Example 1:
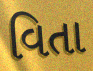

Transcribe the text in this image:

વિતા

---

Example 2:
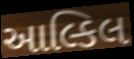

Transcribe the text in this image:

આલ્કિલ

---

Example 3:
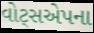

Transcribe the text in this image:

વોટ્સએપના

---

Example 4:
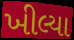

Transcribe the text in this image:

ખીલ્યા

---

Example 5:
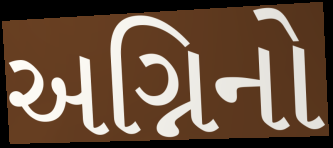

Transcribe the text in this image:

અગ્નિનો